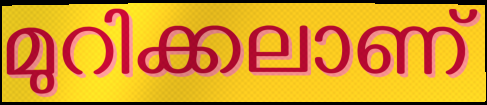
മുറിക്കലാണ്